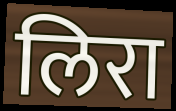
लिरा